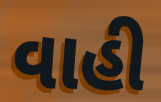
વાહી